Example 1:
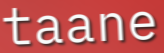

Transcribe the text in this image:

taane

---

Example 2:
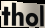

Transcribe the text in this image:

thol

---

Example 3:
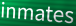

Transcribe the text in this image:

inmates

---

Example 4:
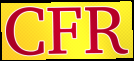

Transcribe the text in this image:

CFR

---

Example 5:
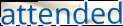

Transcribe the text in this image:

attended